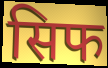
सिफ